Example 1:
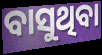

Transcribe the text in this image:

ବାସୁଥିବା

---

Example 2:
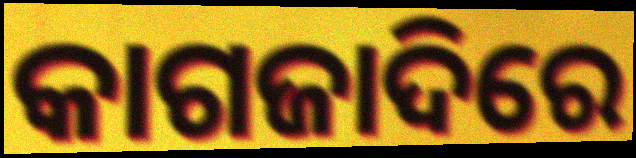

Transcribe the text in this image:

କାଗଜାଦିରେ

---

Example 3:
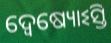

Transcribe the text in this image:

ଦ୍ୱେଷ୍ୟୋଽସ୍ତି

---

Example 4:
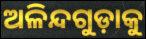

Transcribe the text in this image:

ଅଳିନ୍ଦଗୁଡ଼ାକୁ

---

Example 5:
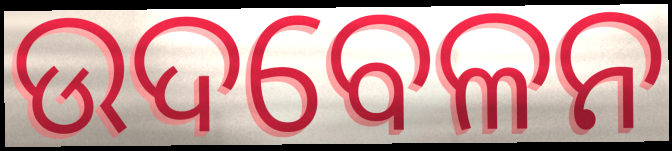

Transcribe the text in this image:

ଉଦବେଳନ